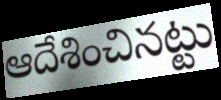
ఆదేశించినట్టు